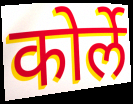
कोर्ले